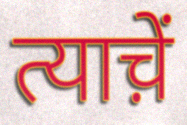
त्याच़ें